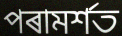
পৰামৰ্শত